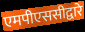
एमपीएससीद्वारे